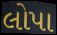
લોપા